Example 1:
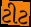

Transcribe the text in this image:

ટીટ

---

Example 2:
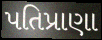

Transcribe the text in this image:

પતિપ્રાણા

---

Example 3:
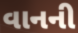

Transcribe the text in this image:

વાનની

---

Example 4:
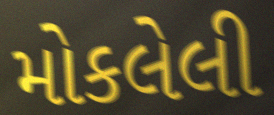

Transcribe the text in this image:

મોકલેલી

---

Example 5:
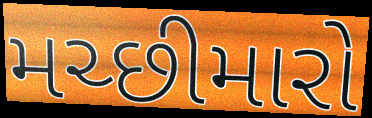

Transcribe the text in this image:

મચ્છીમારો